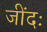
जींदः